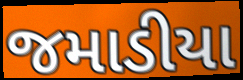
જમાડીયા